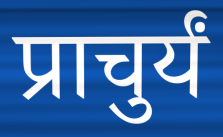
प्राचुर्यं